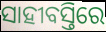
ସାହୀବସ୍ତିରେ